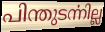
പിന്തുടൎന്നില്ല